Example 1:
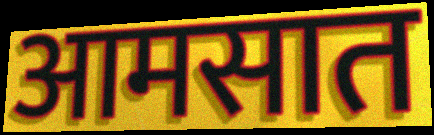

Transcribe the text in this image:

आमसात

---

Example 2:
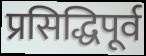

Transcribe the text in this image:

प्रसिद्धिपूर्व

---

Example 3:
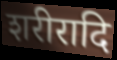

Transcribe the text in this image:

शरीरादि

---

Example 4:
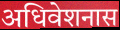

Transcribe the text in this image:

अधिवेशनास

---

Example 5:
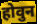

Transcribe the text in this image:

होवुन